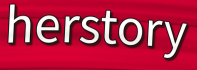
herstory